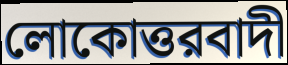
লোকোত্তরবাদী